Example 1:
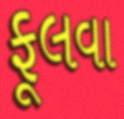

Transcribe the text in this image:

ફૂલવા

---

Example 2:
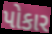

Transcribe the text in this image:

પોકાર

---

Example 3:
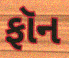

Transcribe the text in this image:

ફૉન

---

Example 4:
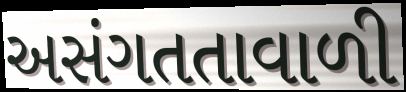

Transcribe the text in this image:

અસંગતતાવાળી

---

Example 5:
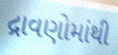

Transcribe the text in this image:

દ્રાવણોમાંથી